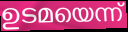
ഉടമയെന്ന്